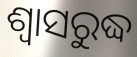
ଶ୍ୱାସରୁଦ୍ଧ